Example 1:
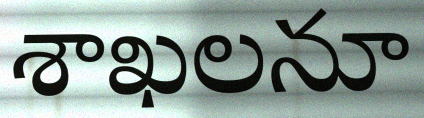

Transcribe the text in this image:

శాఖలనూ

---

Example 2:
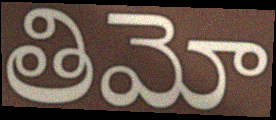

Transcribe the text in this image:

తిమో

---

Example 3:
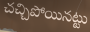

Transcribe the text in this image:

చచ్చిపోయినట్టు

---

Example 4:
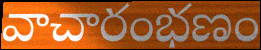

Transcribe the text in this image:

వాచారంభణం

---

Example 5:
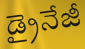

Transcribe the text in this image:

డ్రైనేజీ